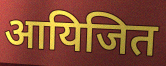
आयिजित